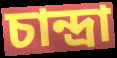
চান্দ্রা